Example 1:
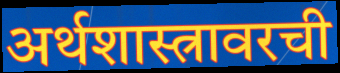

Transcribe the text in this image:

अर्थशास्त्रावरची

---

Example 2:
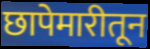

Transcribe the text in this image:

छापेमारीतून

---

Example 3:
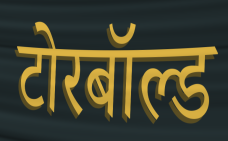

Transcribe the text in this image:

टोरबॉल्ड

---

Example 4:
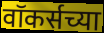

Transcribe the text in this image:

वॉकर्सच्या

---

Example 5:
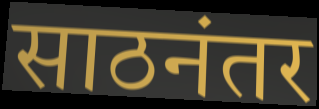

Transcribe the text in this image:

साठनंतर